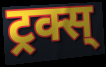
ट्रक्स्